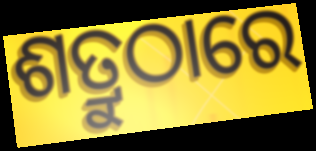
ଶତ୍ରୁଠାରେ